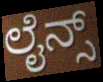
ಲೈನ್ಸ್